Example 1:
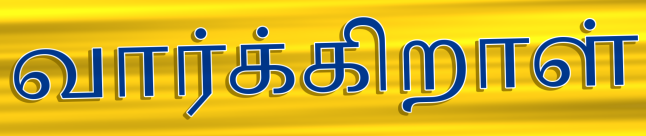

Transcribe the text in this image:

வார்க்கிறாள்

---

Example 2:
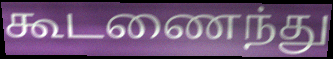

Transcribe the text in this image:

கூடணைந்து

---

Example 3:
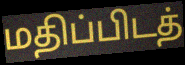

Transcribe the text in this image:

மதிப்பிடத்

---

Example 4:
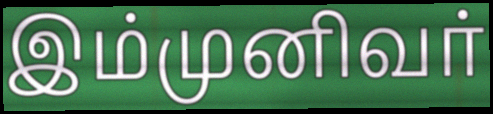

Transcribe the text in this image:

இம்முனிவர்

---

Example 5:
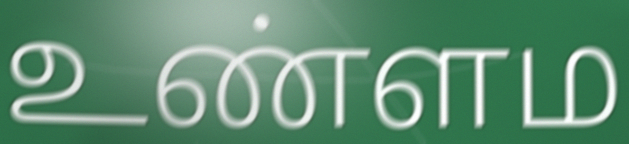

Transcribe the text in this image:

உண்ளம